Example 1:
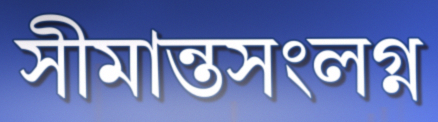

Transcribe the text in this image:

সীমান্তসংলগ্ন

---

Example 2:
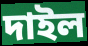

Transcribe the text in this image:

দাইল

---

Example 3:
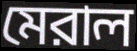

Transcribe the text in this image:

মেরাল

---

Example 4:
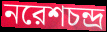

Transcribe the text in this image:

নরেশচন্দ্র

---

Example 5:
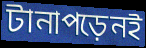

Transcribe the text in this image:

টানাপড়েনই